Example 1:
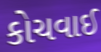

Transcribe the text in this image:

કોચવાઈ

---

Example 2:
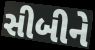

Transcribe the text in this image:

સીબીને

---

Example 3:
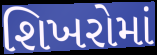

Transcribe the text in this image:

શિખરોમાં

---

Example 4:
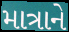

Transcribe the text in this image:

માત્રાને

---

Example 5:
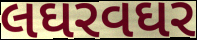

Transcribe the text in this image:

લઘરવઘર